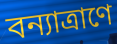
বন্যাত্রাণে